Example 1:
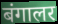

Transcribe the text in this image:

बंगालर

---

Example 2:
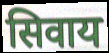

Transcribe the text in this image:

सिवाय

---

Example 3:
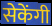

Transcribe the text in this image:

सेकेंगी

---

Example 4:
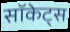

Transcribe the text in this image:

सॉकेट्स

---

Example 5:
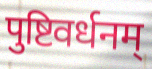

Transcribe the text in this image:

पुष्टिवर्धनम्